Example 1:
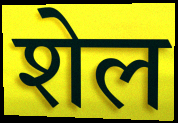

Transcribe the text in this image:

शेल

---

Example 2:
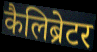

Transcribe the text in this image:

कैलिब्रेटर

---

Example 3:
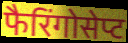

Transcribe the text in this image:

फैरिंगोसेप्ट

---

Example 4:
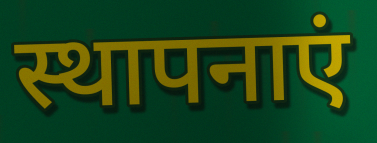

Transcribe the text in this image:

स्थापनाएं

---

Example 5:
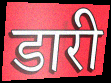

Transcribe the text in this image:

डारी